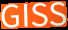
GISS